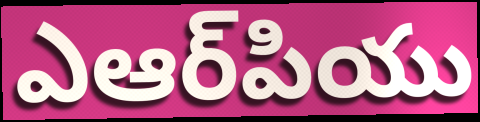
ఎఆర్‌పియు